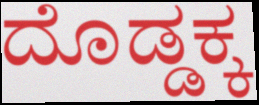
ದೊಡ್ಡಕ್ಕ